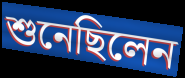
শুনেছিলেন